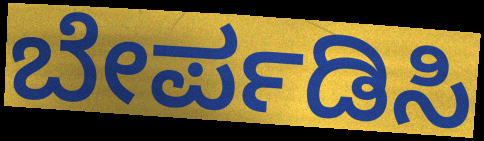
ಬೇರ್ಪಡಿಸಿ